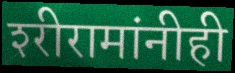
श्रीरामांनीही